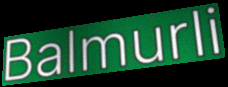
Balmurli